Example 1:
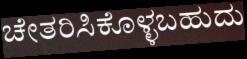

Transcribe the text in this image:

ಚೇತರಿಸಿಕೊಳ್ಳಬಹುದು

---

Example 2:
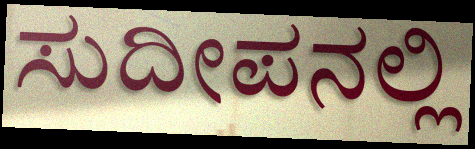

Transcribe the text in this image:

ಸುದೀಪನಲ್ಲಿ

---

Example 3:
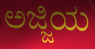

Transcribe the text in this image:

ಅಜ್ಜಿಯ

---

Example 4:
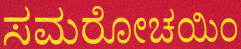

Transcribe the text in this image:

ಸಮರೋಚಯಿಂ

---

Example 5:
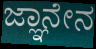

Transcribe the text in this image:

ಜ್ಞಾನೇನ